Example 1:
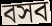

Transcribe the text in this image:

বসব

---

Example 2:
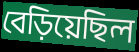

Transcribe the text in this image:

বেড়িয়েছিল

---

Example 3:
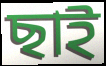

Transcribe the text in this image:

ছাই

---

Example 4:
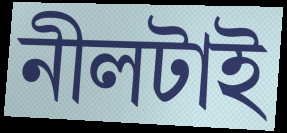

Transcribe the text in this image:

নীলটাই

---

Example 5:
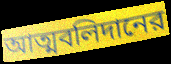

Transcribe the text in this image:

আত্মবলিদানের